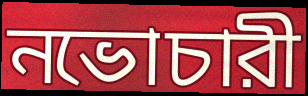
নভোচারী